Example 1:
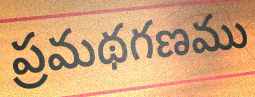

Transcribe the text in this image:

ప్రమథగణము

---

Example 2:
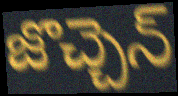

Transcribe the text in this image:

జొచ్చెన్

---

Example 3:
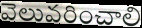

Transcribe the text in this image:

వెలువరించాలి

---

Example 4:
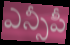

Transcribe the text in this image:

ఎన్సీపీ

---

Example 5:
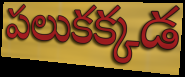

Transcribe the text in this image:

పలుకక్కడ